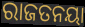
ରାଜତନୟା